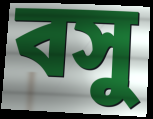
বসু